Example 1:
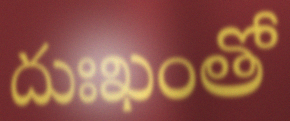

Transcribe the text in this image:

దుఃఖంతో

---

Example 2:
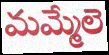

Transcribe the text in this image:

మమ్మేలె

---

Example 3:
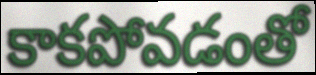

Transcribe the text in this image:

కాకపోవడంతో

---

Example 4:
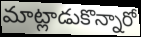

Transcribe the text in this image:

మాట్లాడుకొన్నారో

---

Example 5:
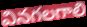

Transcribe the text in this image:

వినగలగాలి